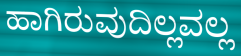
ಹಾಗಿರುವುದಿಲ್ಲವಲ್ಲ